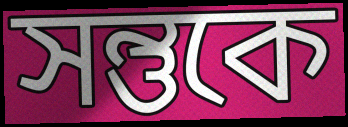
সন্তুকে